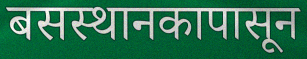
बसस्थानकापासून